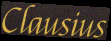
Clausius